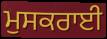
ਮੁਸਕਰਾਈ